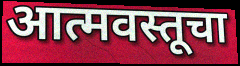
आत्मवस्तूचा